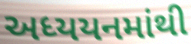
અધ્યયનમાંથી